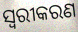
ସ୍ୱରୀକରଣ